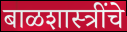
बाळशास्त्रींचे